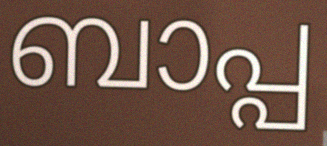
ബാപ്പ